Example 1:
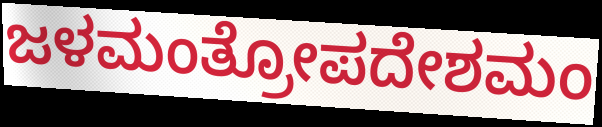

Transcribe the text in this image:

ಜಳಮಂತ್ರೋಪದೇಶಮಂ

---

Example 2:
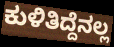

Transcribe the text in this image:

ಕುಳಿತಿದ್ದೆನಲ್ಲ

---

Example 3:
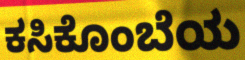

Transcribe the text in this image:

ಕಸಿಕೊಂಬೆಯ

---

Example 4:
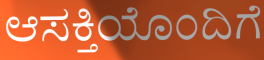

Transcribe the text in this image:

ಆಸಕ್ತಿಯೊಂದಿಗೆ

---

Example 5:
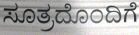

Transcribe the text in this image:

ಸೂತ್ರದೊಂದಿಗೆ